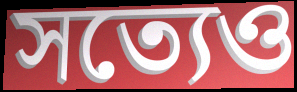
সত্যেও